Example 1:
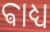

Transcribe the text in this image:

ଵାଧ୍ୟ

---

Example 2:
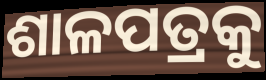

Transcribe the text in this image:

ଶାଳପତ୍ରକୁ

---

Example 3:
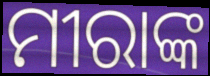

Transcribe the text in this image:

ମୀରାଙ୍କ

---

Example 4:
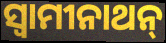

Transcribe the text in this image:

ସ୍ୱାମୀନାଥନ୍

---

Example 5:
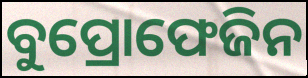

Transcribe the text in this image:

ବୁପ୍ରୋଫେଜିନ